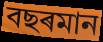
বছৰমান